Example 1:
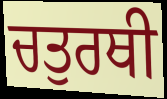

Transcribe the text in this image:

ਚਤੁਰਥੀ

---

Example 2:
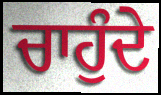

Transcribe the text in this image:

ਚਾਹੁੰਦੇ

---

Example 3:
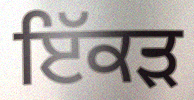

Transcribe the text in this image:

ਇੱਕੜ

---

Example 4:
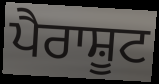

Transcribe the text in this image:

ਪੈਰਾਸ਼ੂਟ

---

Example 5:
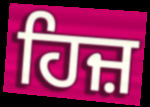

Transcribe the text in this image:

ਹਿਜ਼